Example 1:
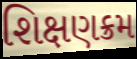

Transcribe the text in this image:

શિક્ષણક્રમ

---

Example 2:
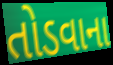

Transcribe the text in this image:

તોડવાના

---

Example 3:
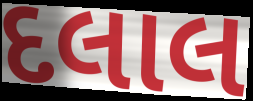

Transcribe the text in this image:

દલાલ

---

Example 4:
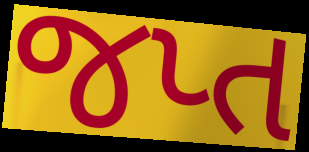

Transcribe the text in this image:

જપ્ત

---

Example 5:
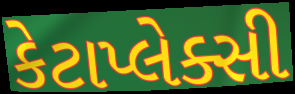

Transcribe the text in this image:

કેટાપ્લેક્સી